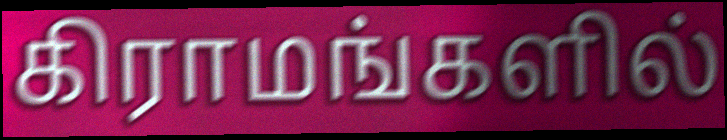
கிராமங்களில்